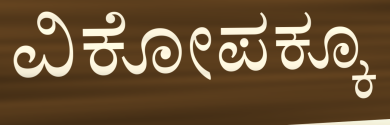
ವಿಕೋಪಕ್ಕೂ